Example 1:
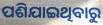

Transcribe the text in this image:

ପଶିଯାଇଥିବାରୁ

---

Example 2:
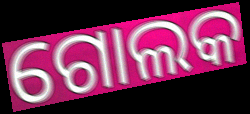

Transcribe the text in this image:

ଗୋଲକ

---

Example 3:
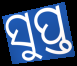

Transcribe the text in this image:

ସୁପ୍ତ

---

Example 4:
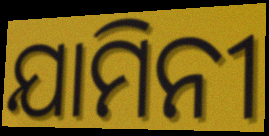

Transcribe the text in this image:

ଯାମିନୀ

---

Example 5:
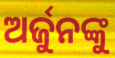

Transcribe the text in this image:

ଅର୍ଜୁନଙ୍କୁ